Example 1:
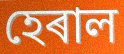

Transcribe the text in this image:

হেৰাল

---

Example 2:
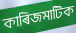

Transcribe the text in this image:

কাৰিজমাটিক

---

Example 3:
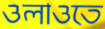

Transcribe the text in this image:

ওলাওতে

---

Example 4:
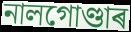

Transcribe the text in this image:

নালগোণ্ডাৰ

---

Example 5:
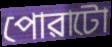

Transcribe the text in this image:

পোৱাটো